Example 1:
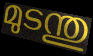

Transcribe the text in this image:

മുടന്തു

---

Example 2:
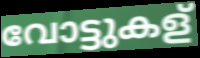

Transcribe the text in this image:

വോട്ടുകള്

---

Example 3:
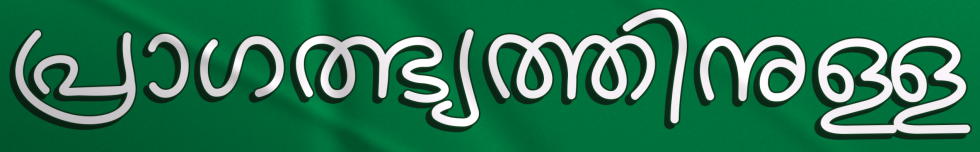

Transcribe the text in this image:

പ്രാഗത്ഭ്യത്തിനുള്ള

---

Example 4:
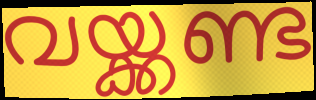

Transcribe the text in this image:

വയ്ക്കണ്ട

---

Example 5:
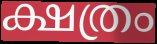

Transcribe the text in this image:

ക്ഷത്രം